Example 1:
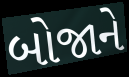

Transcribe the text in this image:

બોજાને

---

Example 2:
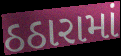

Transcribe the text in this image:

ઠઠારામાં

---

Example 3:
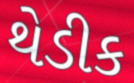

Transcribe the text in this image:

થેડીક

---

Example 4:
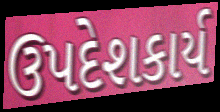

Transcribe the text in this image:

ઉપદેશકાર્ય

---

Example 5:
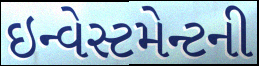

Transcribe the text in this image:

ઇન્વેસ્ટમેન્ટની